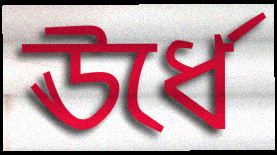
ঊর্ধে